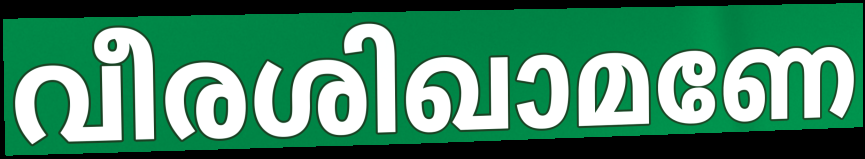
വീരശിഖാമണേ